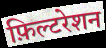
फ़िल्टरेशन